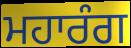
ਮਹਾਰੰਗ